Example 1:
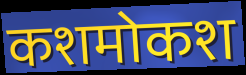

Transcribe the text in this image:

कशमोकश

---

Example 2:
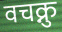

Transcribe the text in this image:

वचक्नु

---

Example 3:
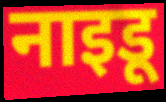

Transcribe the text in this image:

नाइडू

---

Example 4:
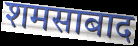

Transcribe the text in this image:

शमसाबाद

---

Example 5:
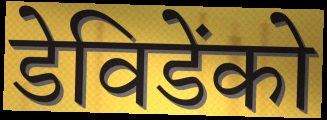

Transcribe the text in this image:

डेविडेंको